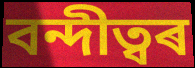
বন্দীত্বৰ